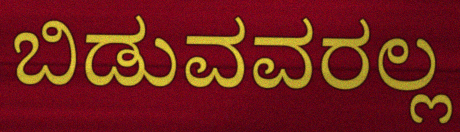
ಬಿಡುವವರಲ್ಲ